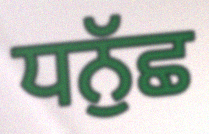
ਧਨੁੱਛ